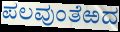
ಪಲವುಂತೆಱದ